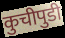
कुचीपुडी